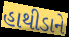
હાથીડાને